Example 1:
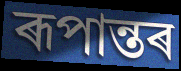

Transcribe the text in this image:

ৰূপান্তৰ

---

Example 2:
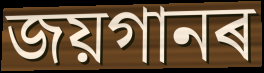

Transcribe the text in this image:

জয়গানৰ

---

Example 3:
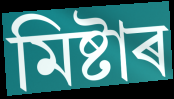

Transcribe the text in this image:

মিষ্টাৰ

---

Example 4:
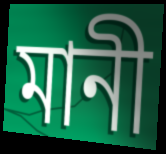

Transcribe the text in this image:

মানী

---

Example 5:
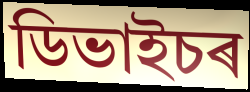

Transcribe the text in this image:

ডিভাইচৰ